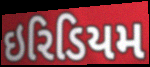
ઇરિડિયમ